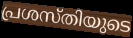
പ്രശസ്തിയുടെ